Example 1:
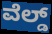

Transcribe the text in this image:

ವೆಲ್ಡ್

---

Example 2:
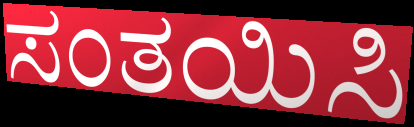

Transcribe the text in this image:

ಸಂತಯಿಸಿ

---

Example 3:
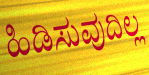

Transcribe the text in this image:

ಹಿಡಿಸುವುದಿಲ್ಲ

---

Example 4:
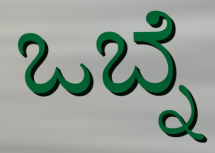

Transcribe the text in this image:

ಒಬ್ನೆ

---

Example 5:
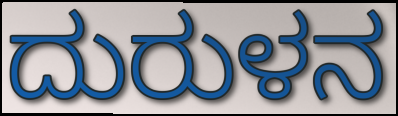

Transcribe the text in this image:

ದುರುಳನ